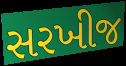
સરખીજ